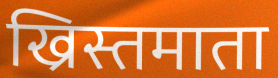
ख्रिस्तमाता